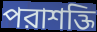
পরাশক্তি